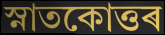
স্নাতকোত্তৰ